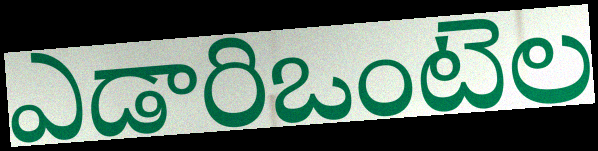
ఎడారిఒంటెల